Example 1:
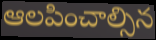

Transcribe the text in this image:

ఆలపించాల్సిన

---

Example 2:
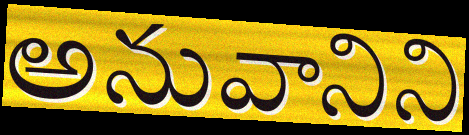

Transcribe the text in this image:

అనువానిని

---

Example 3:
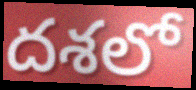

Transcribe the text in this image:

దశలో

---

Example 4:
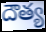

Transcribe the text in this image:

దౌత్య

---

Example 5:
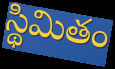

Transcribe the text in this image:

స్థిమితం